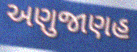
અણુજાણહ